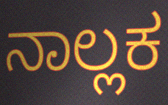
ನಾಲ್ಲಕ